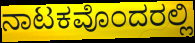
ನಾಟಕವೊಂದರಲ್ಲಿ